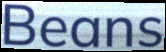
Beans